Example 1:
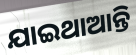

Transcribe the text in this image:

ଯାଇଥାଆନ୍ତି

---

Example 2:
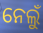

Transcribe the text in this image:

ନେଲୁଁ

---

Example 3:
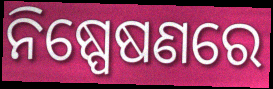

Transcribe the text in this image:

ନିଷ୍ପେଷଣରେ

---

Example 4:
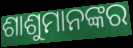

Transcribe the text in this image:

ଶାଶୁମାନଙ୍କର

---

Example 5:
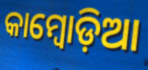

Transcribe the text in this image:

କାମ୍ବୋଡ଼ିଆ